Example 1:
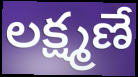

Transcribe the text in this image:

లక్ష్మణే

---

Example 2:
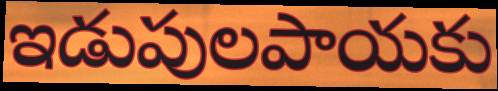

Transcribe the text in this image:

ఇడుపులపాయకు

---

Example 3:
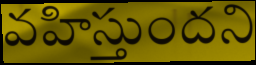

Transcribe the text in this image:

వహిస్తుందని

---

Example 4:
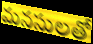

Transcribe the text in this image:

మనసులతో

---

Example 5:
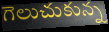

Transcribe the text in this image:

గెలుచుకున్న